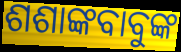
ଶଶାଙ୍କବାବୁଙ୍କ